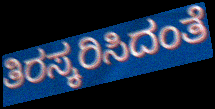
ತಿರಸ್ಕರಿಸಿದಂತೆ